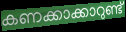
കണക്കാക്കാറുണ്ട്